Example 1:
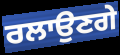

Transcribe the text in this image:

ਰਲਾਉਣਗੇ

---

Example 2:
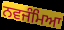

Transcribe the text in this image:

ਨਵਜੰਮਿਆ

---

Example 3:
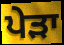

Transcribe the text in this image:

ਪੇੜਾ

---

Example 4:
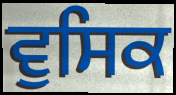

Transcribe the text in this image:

ਵੁਸਿਕ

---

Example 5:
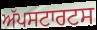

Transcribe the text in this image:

ਅੱਪਸਟਾਰਟਸ